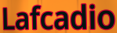
Lafcadio